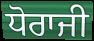
ਧੋਰਾਜੀ